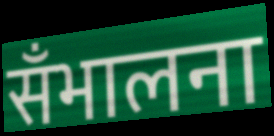
सँभालना